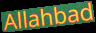
Allahbad